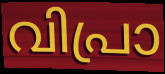
വിപ്രാ